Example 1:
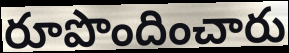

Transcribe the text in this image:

రూపొందించారు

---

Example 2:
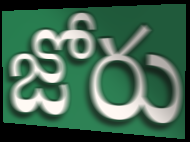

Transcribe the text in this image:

జోరు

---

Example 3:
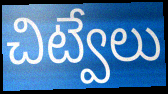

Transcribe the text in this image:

చిట్వేలు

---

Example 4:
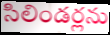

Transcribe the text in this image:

సిలిండర్లను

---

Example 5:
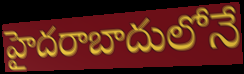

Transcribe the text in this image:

హైదరాబాదులోనే